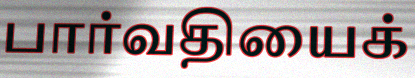
பார்வதியைக்